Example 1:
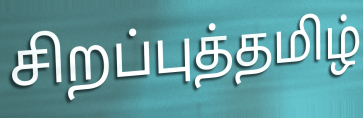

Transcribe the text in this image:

சிறப்புத்தமிழ்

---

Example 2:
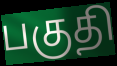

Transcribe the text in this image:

பகுதி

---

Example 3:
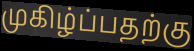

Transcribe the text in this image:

முகிழ்ப்பதற்கு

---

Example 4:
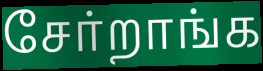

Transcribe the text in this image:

சேர்றாங்க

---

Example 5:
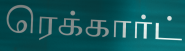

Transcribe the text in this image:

ரெக்கார்ட்